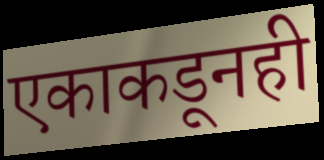
एकाकडूनही